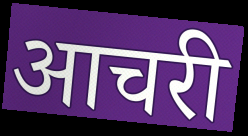
आचरी